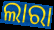
ଲାରା